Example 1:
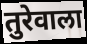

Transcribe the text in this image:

तुरेवाला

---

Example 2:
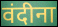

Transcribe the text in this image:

वंदीना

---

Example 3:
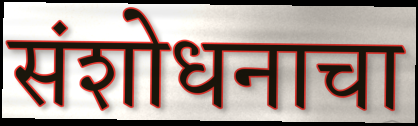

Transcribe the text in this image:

संशोधनाचा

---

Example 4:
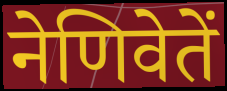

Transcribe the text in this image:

नेणिवेतें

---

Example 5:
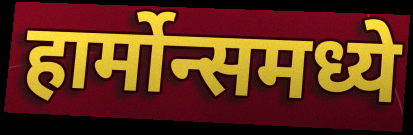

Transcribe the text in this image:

हार्मोन्समध्ये